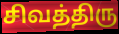
சிவத்திரு